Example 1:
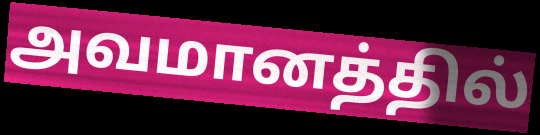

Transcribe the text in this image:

அவமானத்தில்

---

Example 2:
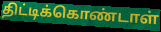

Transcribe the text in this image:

திட்டிக்கொண்டாள்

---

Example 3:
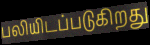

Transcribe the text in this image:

பலியிடப்படுகிறது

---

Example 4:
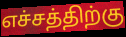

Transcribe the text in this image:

எச்சத்திற்கு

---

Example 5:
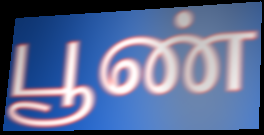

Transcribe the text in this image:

பூண்